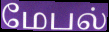
மேபல்